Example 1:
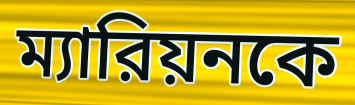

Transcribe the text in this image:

ম্যারিয়নকে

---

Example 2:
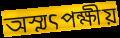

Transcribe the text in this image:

অস্মৎপক্ষীয়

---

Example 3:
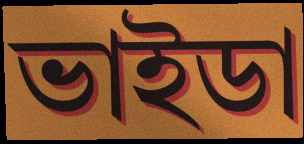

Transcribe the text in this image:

ভাইডা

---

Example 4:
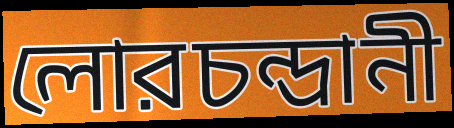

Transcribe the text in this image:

লোরচন্দ্রানী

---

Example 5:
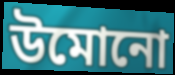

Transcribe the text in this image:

উমোনো